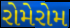
રોમેરોમ